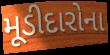
મૂડીદારોના